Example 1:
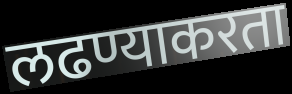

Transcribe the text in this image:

लढण्याकरता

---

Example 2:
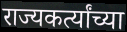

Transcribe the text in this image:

राज्यकर्त्यांच्या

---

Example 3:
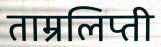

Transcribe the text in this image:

ताम्रलिप्ती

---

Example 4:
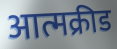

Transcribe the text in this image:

आत्मक्रीड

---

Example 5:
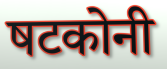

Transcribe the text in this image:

षटकोनी